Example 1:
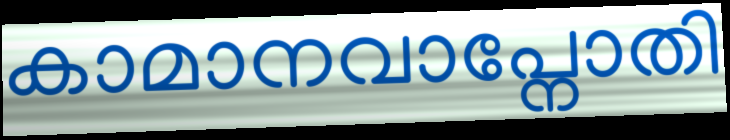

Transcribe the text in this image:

കാമാനവാപ്നോതി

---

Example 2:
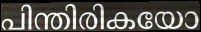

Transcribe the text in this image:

പിന്തിരികയോ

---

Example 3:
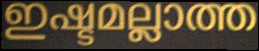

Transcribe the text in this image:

ഇഷ്ടമല്ലാത്ത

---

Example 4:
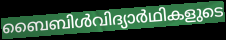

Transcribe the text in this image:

ബൈബിൾവിദ്യാർഥികളുടെ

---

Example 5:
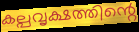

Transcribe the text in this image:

കല്പവൃക്ഷത്തിന്റെ